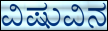
ವಿಷುವಿನ